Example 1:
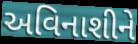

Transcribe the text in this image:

અવિનાશીને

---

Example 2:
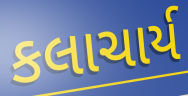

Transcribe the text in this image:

કલાચાર્ય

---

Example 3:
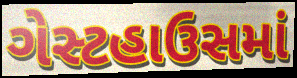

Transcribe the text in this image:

ગેસ્ટહાઉસમાં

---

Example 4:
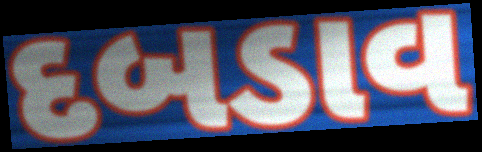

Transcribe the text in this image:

દબડાવ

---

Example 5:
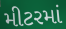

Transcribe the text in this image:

મીટરમાં